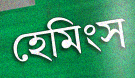
হেমিংস